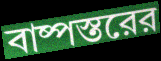
বাষ্পস্তরের